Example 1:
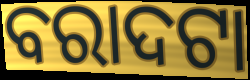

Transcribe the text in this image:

ବରାଦଟା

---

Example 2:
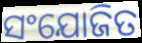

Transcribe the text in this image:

ସଂଯୋଜିତ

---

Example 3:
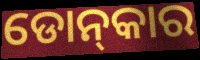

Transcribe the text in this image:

ଡୋନ୍‍କାର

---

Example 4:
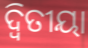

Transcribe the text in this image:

ଦ୍ବିତୀୟା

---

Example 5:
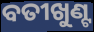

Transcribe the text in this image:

ବତୀଖୁଣ୍ଟ